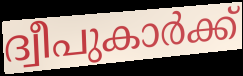
ദ്വീപുകാർക്ക്